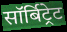
सॉर्बिट्रेट